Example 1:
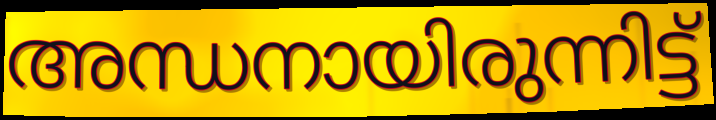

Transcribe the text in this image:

അന്ധനായിരുന്നിട്ട്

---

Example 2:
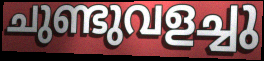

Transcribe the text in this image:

ചുണ്ടുവളച്ചു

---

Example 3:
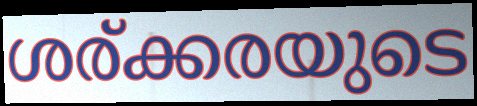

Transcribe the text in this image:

ശര്ക്കരയുടെ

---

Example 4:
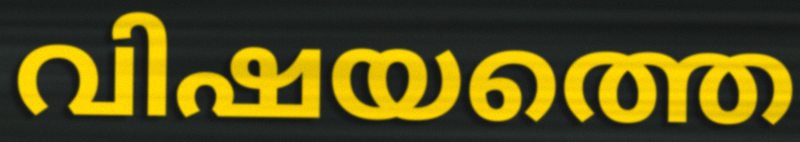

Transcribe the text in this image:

വിഷയത്തെ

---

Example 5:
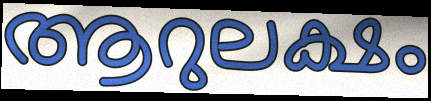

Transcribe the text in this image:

ആറുലക്ഷം